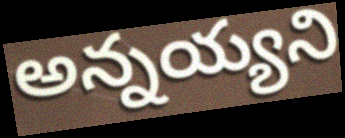
అన్నయ్యని